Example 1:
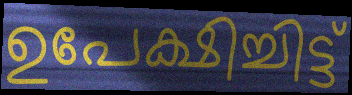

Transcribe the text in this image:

ഉപേക്ഷിച്ചിട്ട്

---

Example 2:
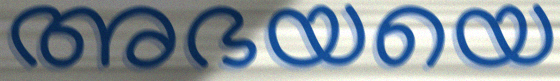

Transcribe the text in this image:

അഭയയെ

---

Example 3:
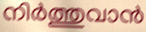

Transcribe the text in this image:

നിർത്തുവാൻ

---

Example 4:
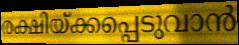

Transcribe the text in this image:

രക്ഷിയ്ക്കപ്പെടുവാൻ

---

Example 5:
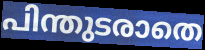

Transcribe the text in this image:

പിന്തുടരാതെ